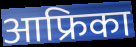
आफ्रिका